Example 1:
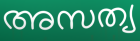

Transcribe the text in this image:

അസത്യ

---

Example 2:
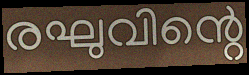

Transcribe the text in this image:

രഘുവിന്റെ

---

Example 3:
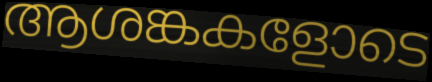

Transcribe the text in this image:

ആശങ്കകളോടെ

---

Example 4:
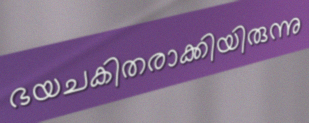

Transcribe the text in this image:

ഭയചകിതരാക്കിയിരുന്നു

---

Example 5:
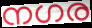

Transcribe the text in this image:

നഗര